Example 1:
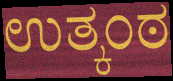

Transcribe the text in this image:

ಉತ್ಕಂಠ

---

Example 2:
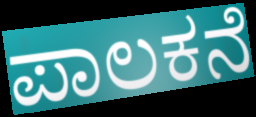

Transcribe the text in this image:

ಪಾಲಕನೆ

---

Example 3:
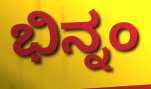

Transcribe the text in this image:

ಭಿನ್ನಂ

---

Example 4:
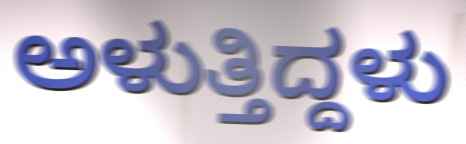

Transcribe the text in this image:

ಅಳುತ್ತಿದ್ದಳು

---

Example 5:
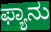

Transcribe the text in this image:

ಫ್ಯಾನು